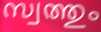
സ്വത്തും